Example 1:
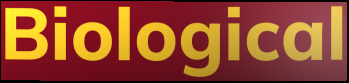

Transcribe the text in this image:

Biological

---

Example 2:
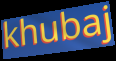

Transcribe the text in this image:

khubaj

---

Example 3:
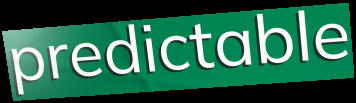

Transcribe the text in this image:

predictable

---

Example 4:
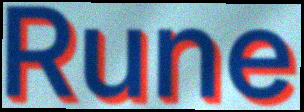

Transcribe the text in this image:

Rune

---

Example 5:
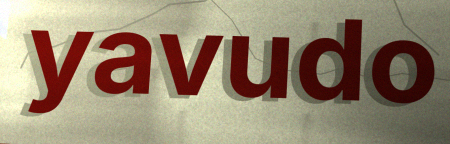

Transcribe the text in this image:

yavudo